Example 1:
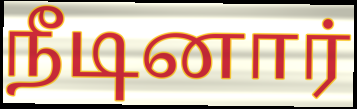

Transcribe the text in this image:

நீடினார்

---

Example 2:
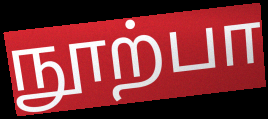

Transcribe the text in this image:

நூற்பா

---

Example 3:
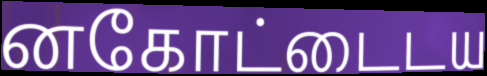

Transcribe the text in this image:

னகோட்டைடய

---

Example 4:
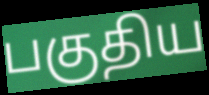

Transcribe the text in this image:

பகுதிய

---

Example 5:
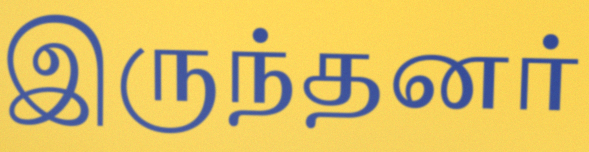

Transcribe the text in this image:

இருந்தனர்